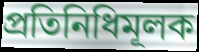
প্ৰতিনিধিমূলক